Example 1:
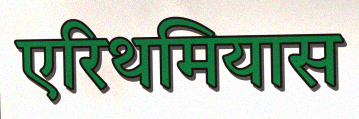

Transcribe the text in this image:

एरिथमियास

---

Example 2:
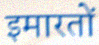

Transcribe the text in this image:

इमारतों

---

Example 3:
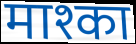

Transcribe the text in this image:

माश्का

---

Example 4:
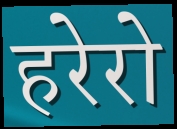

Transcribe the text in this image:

हरेरो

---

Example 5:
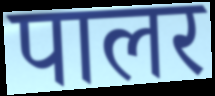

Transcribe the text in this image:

पालर